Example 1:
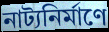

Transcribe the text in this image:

নাট্যনির্মাণে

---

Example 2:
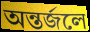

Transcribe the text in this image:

অন্তর্জলে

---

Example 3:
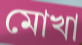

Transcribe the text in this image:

মোখা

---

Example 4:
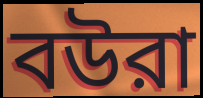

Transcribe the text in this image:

বউরা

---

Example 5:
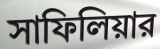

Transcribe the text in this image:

সাফিলিয়ার